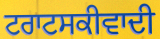
ਟਰਾਟਸਕੀਵਾਦੀ